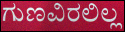
ಗುಣವಿರಲಿಲ್ಲ